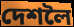
দেশলৈ